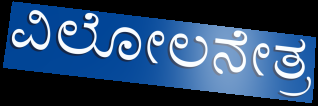
ವಿಲೋಲನೇತ್ರ